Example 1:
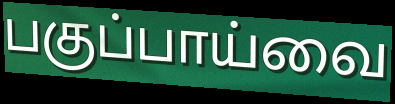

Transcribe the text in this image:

பகுப்பாய்வை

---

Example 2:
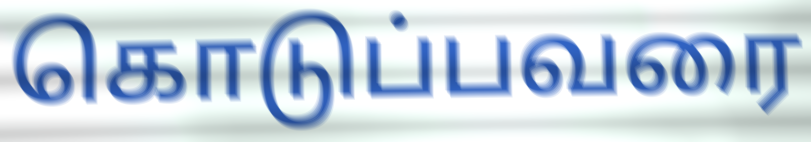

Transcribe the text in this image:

கொடுப்பவரை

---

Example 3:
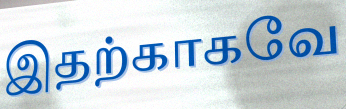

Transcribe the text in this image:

இதற்காகவே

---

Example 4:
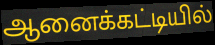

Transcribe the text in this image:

ஆனைக்கட்டியில்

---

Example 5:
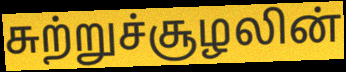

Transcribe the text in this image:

சுற்றுச்சூழலின்